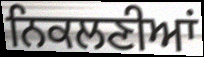
ਨਿਕਲਣੀਆਂ